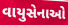
વાયુસેનાઓ